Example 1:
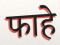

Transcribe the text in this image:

फाहे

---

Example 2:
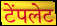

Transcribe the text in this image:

टेंपलेट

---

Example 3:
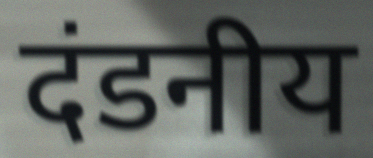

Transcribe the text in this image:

दंडनीय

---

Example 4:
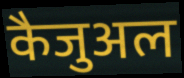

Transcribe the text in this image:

कैजुअल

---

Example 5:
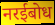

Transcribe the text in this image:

नरईबोध